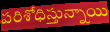
పరిశోధిస్తున్నాయి